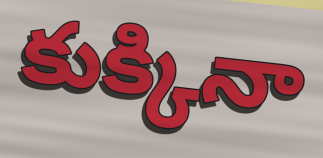
కుక్కినా